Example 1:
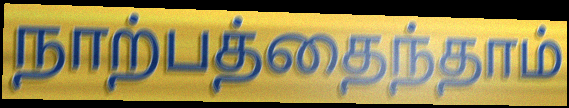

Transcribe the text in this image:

நாற்பத்தைந்தாம்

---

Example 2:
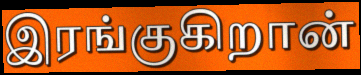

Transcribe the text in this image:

இரங்குகிறான்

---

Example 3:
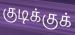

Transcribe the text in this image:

குடிக்குக்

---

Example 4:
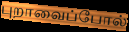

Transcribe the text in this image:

புறாவைப்போல்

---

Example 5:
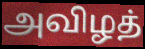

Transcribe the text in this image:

அவிழத்